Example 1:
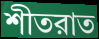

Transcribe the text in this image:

শীতরাত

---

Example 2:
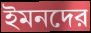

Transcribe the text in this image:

ইমনদের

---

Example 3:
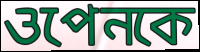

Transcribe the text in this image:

ওপেনকে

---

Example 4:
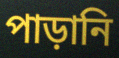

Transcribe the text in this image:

পাড়ানি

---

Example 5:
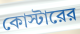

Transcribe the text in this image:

কোস্টারের